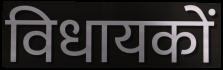
विधायकों